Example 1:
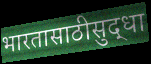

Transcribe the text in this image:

भारतासाठीसुद्धा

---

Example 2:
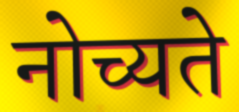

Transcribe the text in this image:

नोच्यते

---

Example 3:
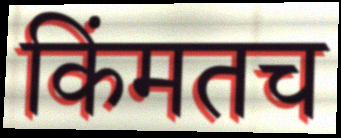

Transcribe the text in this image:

किंमतच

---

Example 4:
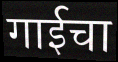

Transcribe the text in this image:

गाईचा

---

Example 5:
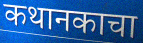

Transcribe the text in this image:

कथानकाचा